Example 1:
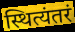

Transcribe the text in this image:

स्थित्यंतरं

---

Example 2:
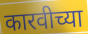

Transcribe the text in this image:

कारवीच्या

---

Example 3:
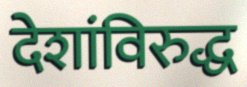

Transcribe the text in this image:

देशांविरुद्ध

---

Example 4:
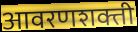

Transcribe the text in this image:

आवरणशक्ती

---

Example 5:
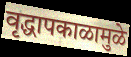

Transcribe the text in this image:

वृद्धापकाळामुळे